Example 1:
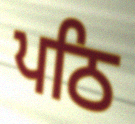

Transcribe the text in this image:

ਪਠਿ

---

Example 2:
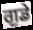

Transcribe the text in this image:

ਗੁਡੇ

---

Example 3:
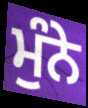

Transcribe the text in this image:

ਮੁੰਨੇ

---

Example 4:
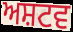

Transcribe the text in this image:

ਅਸ਼ਟਵ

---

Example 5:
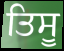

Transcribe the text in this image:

ਤਿਸੂ